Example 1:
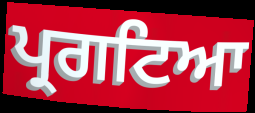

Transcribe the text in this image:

ਪ੍ਰਗਟਿਆ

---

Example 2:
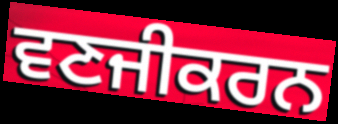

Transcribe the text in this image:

ਵਣਜੀਕਰਨ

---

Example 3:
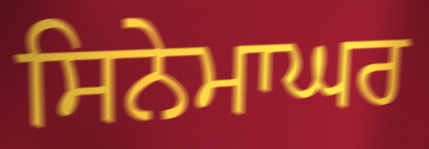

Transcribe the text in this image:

ਸਿਨੇਮਾਘਰ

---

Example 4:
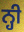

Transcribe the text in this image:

ਨ੍ਹੀ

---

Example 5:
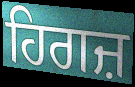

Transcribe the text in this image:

ਹਿਗਜ਼